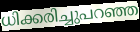
ധിക്കരിച്ചുപറഞ്ഞ